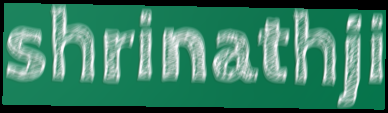
shrinathji